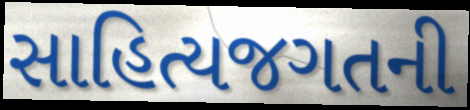
સાહિત્યજગતની